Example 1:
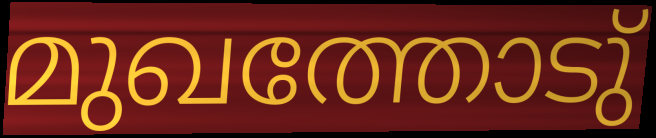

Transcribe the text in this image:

മുഖത്തോടു്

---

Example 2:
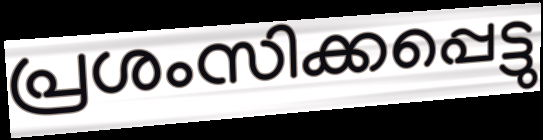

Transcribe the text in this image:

പ്രശംസിക്കപ്പെട്ടു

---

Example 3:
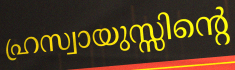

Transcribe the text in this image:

ഹ്രസ്വായുസ്സിന്റെ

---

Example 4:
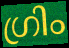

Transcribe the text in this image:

ഗ്രിം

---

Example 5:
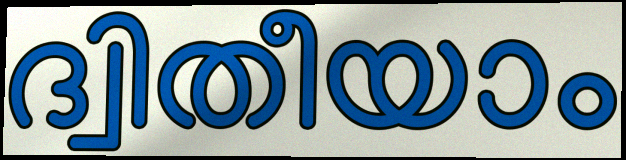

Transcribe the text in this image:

ദ്വിതീയാം